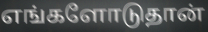
எங்களோடுதான்